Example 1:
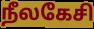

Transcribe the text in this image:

நீலகேசி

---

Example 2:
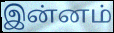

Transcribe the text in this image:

இன்னம்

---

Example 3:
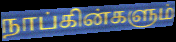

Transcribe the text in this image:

நாப்கின்களும்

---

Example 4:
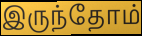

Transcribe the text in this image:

இருந்தோம்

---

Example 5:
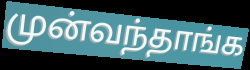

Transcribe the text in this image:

முன்வந்தாங்க